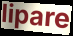
lipare